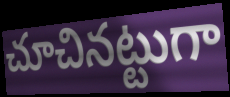
చూచినట్టుగా